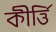
কীৰ্ত্তি